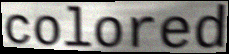
colored